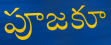
పూజకూ